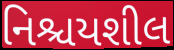
નિશ્ચયશીલ